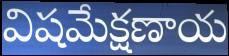
విషమేక్షణాయ